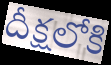
దీక్షలోకి